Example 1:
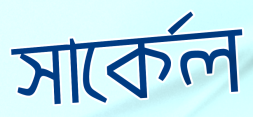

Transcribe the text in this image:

সার্কেল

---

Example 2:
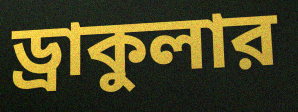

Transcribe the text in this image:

ড্রাকুলার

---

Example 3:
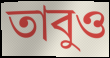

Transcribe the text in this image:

তাবুও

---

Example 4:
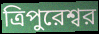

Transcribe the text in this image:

ত্রিপুরেশ্বর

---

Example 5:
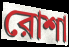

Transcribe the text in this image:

রোশা